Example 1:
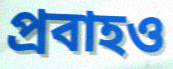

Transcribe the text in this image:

প্রবাহও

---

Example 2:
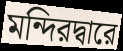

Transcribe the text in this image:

মন্দিরদ্বারে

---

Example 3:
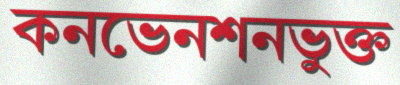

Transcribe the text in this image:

কনভেনশনভুক্ত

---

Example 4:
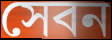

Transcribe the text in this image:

সেবন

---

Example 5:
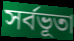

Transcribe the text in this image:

সর্বভূতা